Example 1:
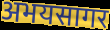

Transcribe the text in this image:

अभयसागर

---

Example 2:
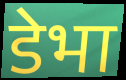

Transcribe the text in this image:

डेभा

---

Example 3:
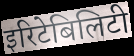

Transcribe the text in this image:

इरिटेबिलिटी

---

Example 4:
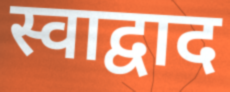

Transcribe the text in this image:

स्वाद्वाद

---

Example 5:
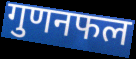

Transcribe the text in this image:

गुणनफल